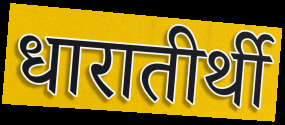
धारातीर्थी